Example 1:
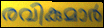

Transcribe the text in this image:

രവികുമാർ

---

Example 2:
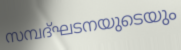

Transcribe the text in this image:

സമ്പദ്ഘടനയുടെയും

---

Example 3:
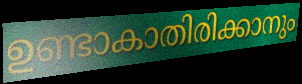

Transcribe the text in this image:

ഉണ്ടാകാതിരിക്കാനും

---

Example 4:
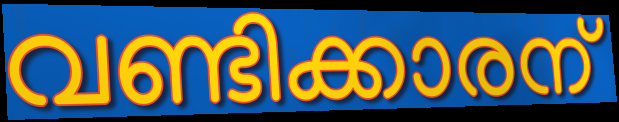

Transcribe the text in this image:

വണ്ടിക്കാരന്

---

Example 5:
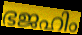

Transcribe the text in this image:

ഭജഹിം